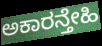
ಅಕಾರನ್ತೇಹಿ